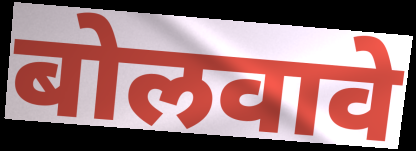
बोलवावे